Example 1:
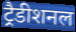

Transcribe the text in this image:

ट्रैडीशनल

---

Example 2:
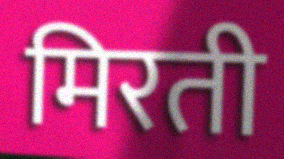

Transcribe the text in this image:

मिरती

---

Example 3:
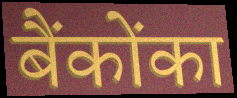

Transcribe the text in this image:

बैंकोंका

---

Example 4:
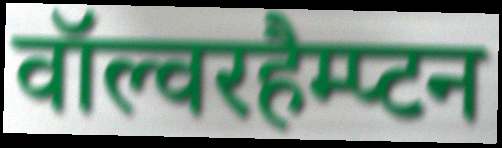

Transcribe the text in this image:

वॉल्वरहैम्प्टन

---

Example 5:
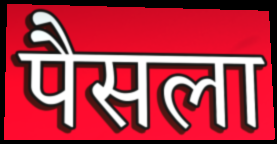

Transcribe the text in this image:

पैसला